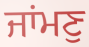
ਜਾਂਮਣੁ